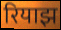
रियाझ